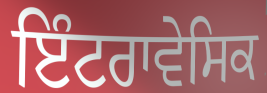
ਇੰਟਰਾਵੇਸਿਕ